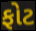
ફોટ